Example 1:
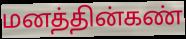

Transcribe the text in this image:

மனத்தின்கண்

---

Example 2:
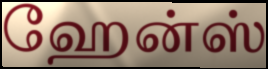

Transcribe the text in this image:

ஹேன்ஸ்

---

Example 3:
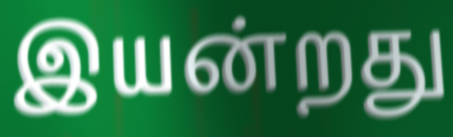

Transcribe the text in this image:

இயன்றது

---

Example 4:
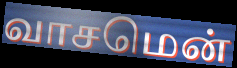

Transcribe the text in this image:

வாசமென்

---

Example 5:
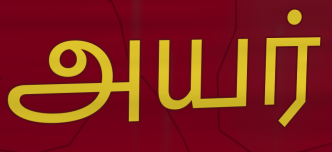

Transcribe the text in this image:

அயர்